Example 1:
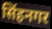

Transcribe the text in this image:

सिंहनगर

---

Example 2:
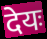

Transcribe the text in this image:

देयः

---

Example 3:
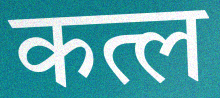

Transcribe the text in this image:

कत्‍ल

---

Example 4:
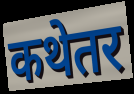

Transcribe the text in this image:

कथेतर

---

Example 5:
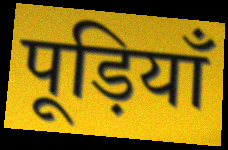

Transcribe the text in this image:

पूड़ियाँ